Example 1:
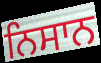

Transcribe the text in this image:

ਨਿਸਾਨ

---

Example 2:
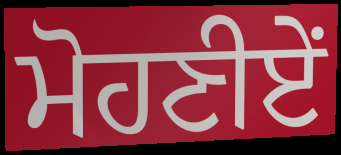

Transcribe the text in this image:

ਮੋਹਣੀਏਂ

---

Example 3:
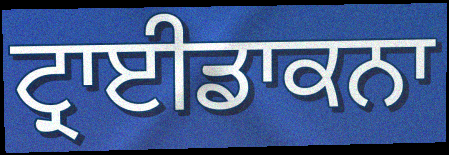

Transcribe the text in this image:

ਟ੍ਰਾਈਡਾਕਨਾ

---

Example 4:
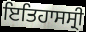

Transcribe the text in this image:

ਇਤਿਹਾਸਸ੍ਰੀ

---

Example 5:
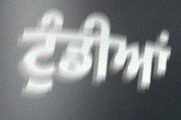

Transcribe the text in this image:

ਟੁੰਡੀਆਂ